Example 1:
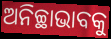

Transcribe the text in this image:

ଅନିଚ୍ଛାଭାବକୁ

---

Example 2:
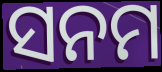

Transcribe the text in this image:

ସନମ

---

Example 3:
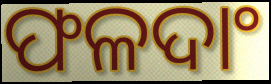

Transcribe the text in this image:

ଫଳଦାଂ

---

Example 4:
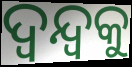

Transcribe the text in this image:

ଦ୍ଵନ୍ଦ୍ଵକୁ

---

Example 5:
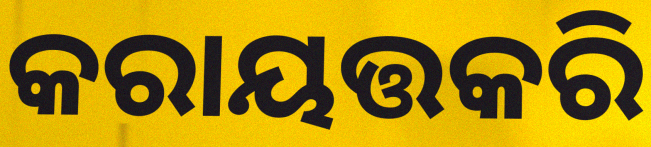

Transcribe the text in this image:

କରାୟତ୍ତକରି